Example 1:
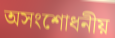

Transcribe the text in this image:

অসংশোধনীয়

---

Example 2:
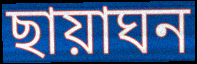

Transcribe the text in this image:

ছায়াঘন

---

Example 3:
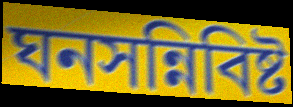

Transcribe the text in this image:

ঘনসন্নিবিষ্ট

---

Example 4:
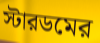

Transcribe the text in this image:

স্টারডমের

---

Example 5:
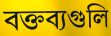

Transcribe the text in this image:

বক্তব্যগুলি